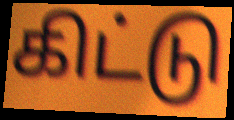
கிட்டு